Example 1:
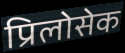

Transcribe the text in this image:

प्रिलोसेक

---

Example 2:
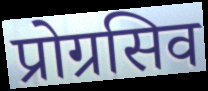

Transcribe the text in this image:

प्रोग्रसिव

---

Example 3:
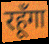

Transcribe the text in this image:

रहूँगा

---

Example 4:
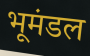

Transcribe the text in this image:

भूमंडल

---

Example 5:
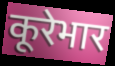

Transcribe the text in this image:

कूरेभार